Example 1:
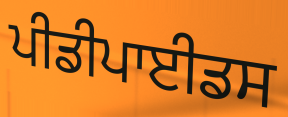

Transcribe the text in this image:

ਪੀਡੀਪਾਈਡਸ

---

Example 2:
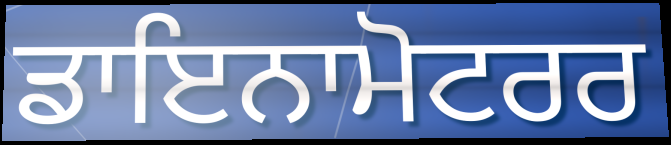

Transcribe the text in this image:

ਡਾਇਨਾਮੋਟਰਰ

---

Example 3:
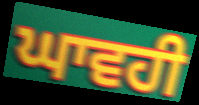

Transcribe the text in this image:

ਘਾਵਹੀ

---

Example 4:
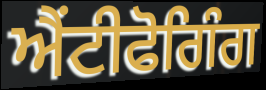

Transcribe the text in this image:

ਐਂਟੀਫੋਗਿੰਗ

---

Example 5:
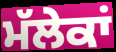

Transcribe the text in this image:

ਮੱਲੇਕਾਂ